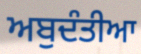
ਅਬੁਦੰਤੀਆ